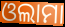
ଓଲାମା